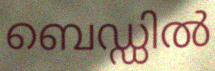
ബെഡ്ഡിൽ